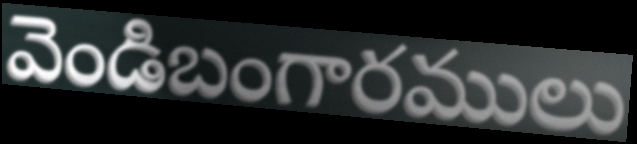
వెండిబంగారములు